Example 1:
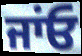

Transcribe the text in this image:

ਜਾਂਓ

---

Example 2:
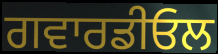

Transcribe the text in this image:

ਗਵਾਰਡੀਓਲ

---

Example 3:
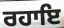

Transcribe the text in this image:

ਰਹਾਇ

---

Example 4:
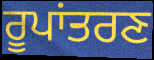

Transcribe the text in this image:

ਰੂਪਾਂਤਰਣ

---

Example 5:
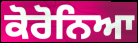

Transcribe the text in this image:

ਕੋਰੋਨਿਆ